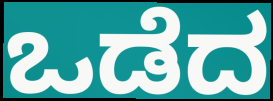
ಒಡೆದ